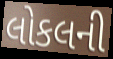
લોકલની